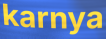
karnya